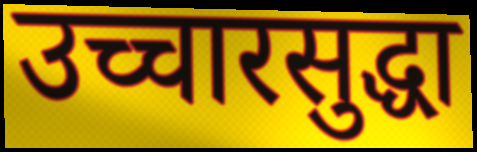
उच्चारसुद्धा